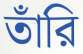
তাঁরি